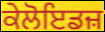
ਕੇਲੋਇਡਜ਼